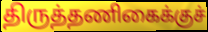
திருத்தணிகைக்குச்